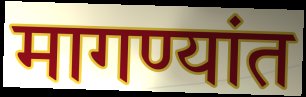
मागण्यांत